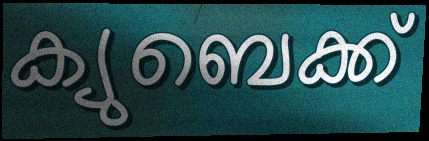
ക്യുബെക്ക്